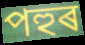
পহুৰ